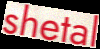
shetal